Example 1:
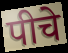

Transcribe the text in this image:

पीचे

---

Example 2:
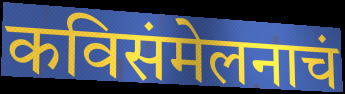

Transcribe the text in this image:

कविसंमेलनाचं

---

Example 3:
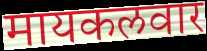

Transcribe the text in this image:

मायकलवार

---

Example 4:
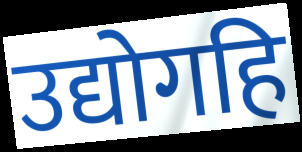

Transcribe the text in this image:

उद्योगहि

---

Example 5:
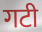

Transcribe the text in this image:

गटी